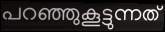
പറഞ്ഞുകൂട്ടുന്നത്